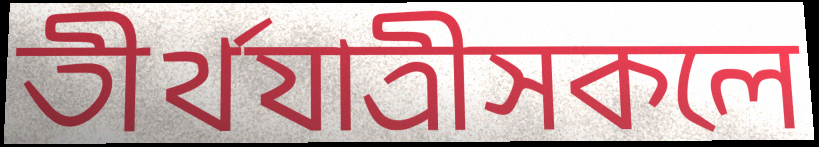
তীৰ্থযাত্ৰীসকলে